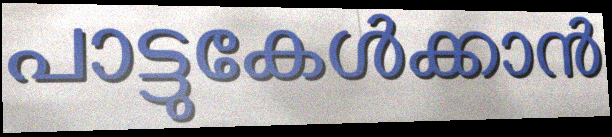
പാട്ടുകേൾക്കാൻ